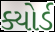
ક્યોર્ડ